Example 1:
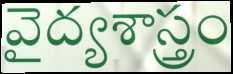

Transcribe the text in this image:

వైద్యశాస్త్రం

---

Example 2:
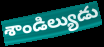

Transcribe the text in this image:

శాండిల్యుడు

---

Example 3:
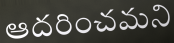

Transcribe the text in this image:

ఆదరించమని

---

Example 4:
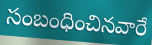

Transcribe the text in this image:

సంబంధించినవారే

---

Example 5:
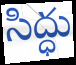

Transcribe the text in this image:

సిద్ధు